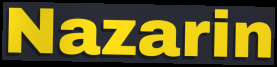
Nazarin